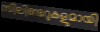
സിലിണ്ടറുകളുമായി